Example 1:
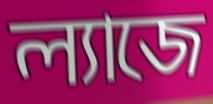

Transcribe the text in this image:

ল্যাজে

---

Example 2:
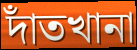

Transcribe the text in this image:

দাঁতখানা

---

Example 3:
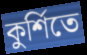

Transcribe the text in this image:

কুর্শিতে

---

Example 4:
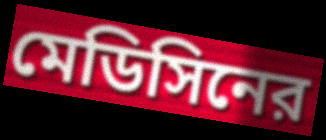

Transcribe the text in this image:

মেডিসিনের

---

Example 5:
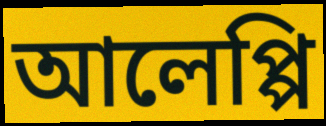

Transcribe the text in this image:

আলেপ্পি